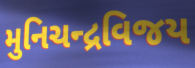
મુનિચન્દ્રવિજય